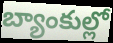
బ్యాంకుల్లో